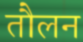
तौलन